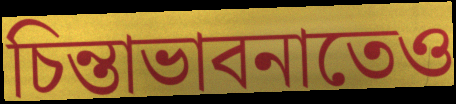
চিন্তাভাবনাতেও